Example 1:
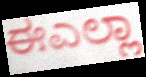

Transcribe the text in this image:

ಈಎಲ್ಲಾ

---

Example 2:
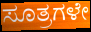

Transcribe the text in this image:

ಸೂತ್ರಗಳೇ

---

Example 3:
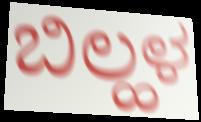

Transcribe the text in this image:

ಬಿಲ್ಹಳ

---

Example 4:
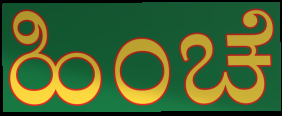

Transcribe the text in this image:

ಹಿಂಚೆ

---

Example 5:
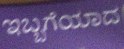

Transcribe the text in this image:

ಇಬ್ಬಗೆಯಾದ